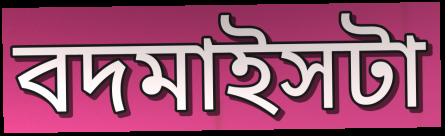
বদমাইসটা